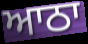
ਆਠਾ